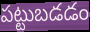
పట్టుబడడం